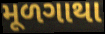
મૂળગાથા